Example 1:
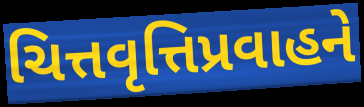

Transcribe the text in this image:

ચિત્તવૃત્તિપ્રવાહને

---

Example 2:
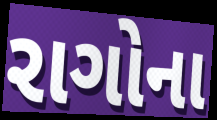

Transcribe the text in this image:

રાગોના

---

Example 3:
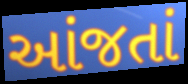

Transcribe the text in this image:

આંજતાં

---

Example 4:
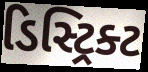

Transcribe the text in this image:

ડિસ્ટ્રિક્ટ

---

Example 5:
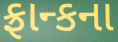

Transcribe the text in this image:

ફ્રાન્કના